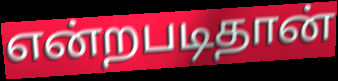
என்றபடிதான்